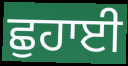
ਛੁਹਾਈ